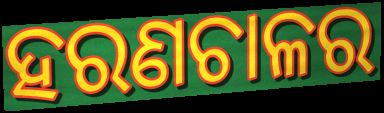
ହରଣଚାଳର